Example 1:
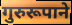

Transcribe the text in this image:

गुरुरूपाने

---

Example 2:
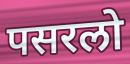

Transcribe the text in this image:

पसरलो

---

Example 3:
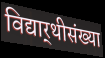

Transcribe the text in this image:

विद्यार्थीसंख्या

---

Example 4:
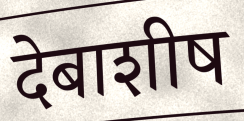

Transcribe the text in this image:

देबाशीष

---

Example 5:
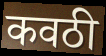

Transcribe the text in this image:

कवठी